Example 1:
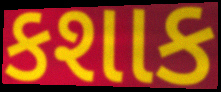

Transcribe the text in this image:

કશાક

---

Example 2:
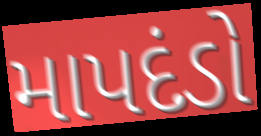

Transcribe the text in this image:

માપદંડો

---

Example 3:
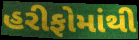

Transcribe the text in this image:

હરીફોમાંથી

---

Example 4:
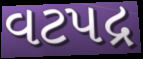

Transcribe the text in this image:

વટપદ્ર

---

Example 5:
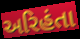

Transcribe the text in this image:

અરિહંતા